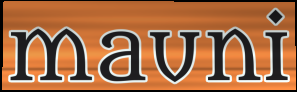
mauni